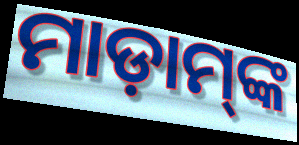
ମାଡ଼ାମ୍‌ଙ୍କ